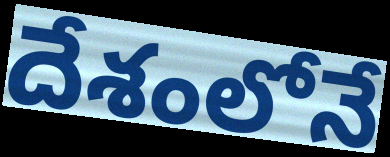
దేశంలోనే